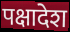
पक्षादेश